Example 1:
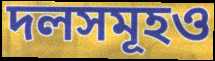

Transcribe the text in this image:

দলসমূহও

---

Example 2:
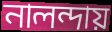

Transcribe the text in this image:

নালন্দায়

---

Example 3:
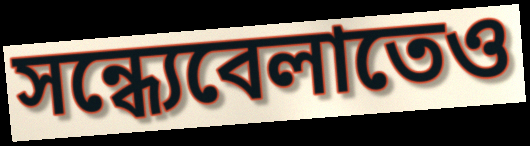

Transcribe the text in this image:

সন্ধ্যেবেলাতেও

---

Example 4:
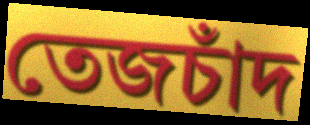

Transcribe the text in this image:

তেজচাঁদ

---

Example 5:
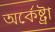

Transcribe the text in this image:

অর্কেষ্ট্রা